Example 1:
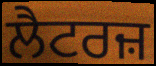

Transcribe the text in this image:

ਲੈਟਰਜ਼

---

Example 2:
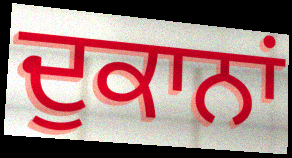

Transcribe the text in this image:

ਦੁਕਾਨਾਂ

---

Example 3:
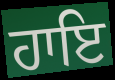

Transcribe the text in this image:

ਹਾਇ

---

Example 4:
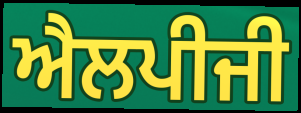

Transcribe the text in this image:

ਐਲਪੀਜੀ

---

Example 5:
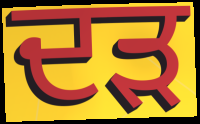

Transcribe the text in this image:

ਦੜ